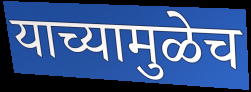
याच्यामुळेच